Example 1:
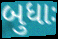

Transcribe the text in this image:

બુધાઃ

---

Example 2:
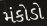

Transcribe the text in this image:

મંકોડો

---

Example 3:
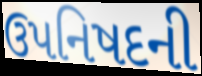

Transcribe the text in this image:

ઉપનિષદની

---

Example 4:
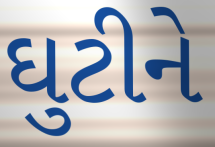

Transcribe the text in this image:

ઘુટીને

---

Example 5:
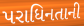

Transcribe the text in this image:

પરાધિનતાની